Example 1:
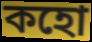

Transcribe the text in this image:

কহো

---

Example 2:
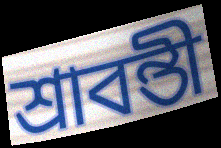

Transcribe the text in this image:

শ্রাবন্তী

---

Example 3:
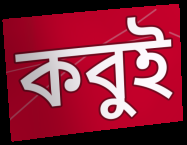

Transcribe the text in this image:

কবুই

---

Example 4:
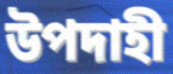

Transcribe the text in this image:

উপদাহী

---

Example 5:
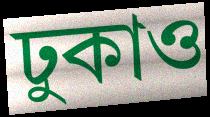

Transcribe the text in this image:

ঢুকাও